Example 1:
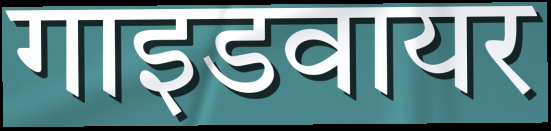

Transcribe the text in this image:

गाइडवायर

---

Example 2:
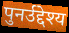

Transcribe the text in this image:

पुनर्उद्देश्य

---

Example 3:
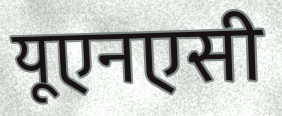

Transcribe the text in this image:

यूएनएसी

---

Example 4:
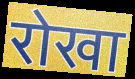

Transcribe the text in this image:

रोखा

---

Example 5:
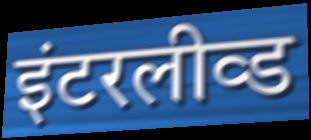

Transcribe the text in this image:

इंटरलीव्ड